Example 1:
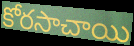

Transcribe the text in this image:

కోరసాచాయి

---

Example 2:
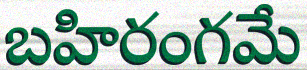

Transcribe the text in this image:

బహిరంగమే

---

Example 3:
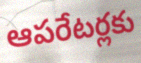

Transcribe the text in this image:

ఆపరేటర్లకు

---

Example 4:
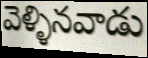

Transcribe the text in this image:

వెళ్ళినవాడు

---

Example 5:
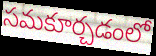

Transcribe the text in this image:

సమకూర్చడంలో